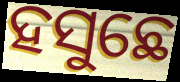
ହସୁଛେ